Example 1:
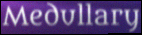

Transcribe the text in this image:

Medullary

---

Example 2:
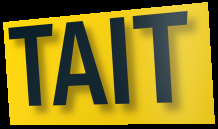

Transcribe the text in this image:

TAIT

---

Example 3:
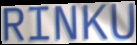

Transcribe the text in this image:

RINKU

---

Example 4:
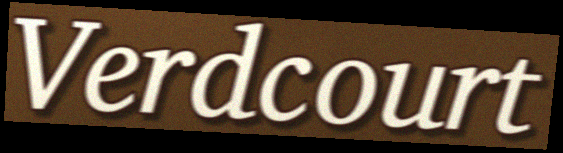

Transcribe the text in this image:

Verdcourt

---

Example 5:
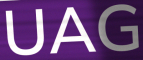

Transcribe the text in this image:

UAG